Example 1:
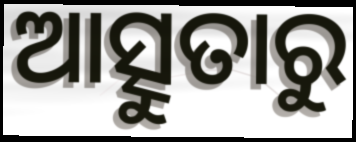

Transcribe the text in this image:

ଆତ୍ସୁତାରୁ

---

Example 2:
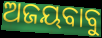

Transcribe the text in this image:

ଅଜୟବାବୁ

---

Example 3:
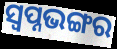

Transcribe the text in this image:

ସ୍ୱପ୍ନଭଙ୍ଗର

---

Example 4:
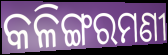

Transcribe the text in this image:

କଳିଙ୍ଗରମଣୀ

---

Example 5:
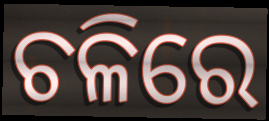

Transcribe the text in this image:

ଚଳିରେ